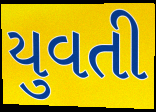
યુવતી